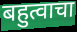
बहुत्वाचा